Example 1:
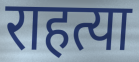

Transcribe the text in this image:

राहत्या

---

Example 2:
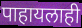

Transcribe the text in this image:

पाहायलाही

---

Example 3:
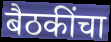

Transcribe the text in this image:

बैठकींचा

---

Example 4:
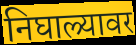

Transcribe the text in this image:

निघाल्यावर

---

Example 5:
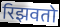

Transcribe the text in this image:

रिझवतो